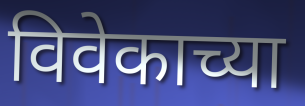
विवेकाच्या